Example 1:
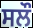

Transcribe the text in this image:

ਸਲੌ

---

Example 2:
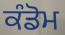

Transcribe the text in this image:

ਕੰਡੋਮ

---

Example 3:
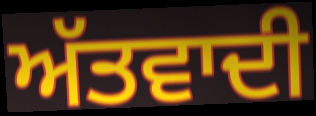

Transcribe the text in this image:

ਅੱਤਵਾਦੀ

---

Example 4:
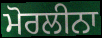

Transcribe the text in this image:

ਮੋਰਲੀਨਾ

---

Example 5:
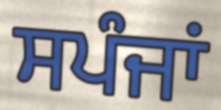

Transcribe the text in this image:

ਸਪੰਜਾਂ